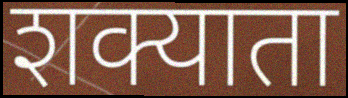
शक्याता